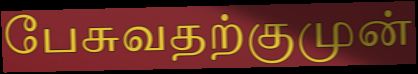
பேசுவதற்குமுன்